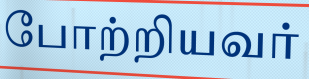
போற்றியவர்